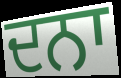
ਦਨਾ